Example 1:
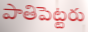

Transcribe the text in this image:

పాతిపెట్టరు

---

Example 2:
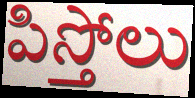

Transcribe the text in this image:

పిస్తోలు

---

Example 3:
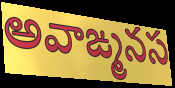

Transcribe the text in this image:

అవాఙ్మనస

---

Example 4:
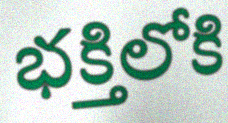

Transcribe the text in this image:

భక్తిలోకి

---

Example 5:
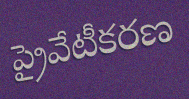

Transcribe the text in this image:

ప్రైవేటీకరణ